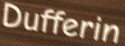
Dufferin